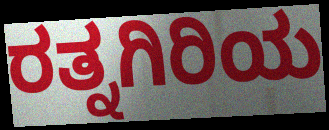
ರತ್ನಗಿರಿಯ